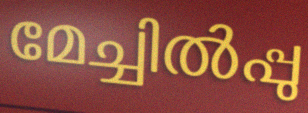
മേച്ചിൽപ്പു